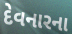
દેવનારના